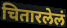
चितारलेलं